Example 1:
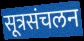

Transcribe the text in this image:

सूत्रसंचलन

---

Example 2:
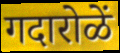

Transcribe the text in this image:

गदारोळें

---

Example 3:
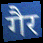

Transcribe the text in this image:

गैर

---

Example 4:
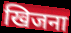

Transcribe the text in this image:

खिजना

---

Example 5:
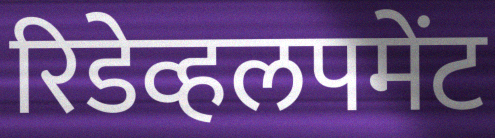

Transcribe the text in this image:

रिडेव्हलपमेंट